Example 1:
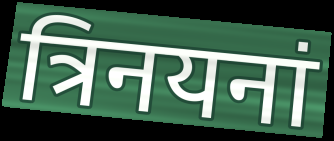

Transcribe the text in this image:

त्रिनयनां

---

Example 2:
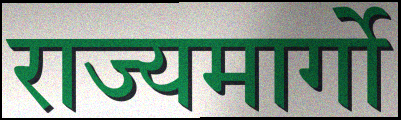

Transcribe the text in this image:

राज्यमार्गो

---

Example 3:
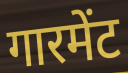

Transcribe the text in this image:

गारमेंट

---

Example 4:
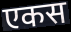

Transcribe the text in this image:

एकस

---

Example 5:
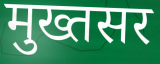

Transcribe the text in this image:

मुख्तसर